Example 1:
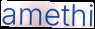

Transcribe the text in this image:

amethi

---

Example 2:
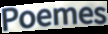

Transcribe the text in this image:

Poemes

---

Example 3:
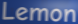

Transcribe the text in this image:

Lemon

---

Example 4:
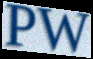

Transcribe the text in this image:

PW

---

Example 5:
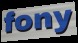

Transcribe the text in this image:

fony